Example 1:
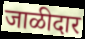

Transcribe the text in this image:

जाळीदार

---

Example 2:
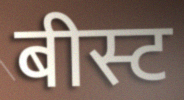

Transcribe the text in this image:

बीस्ट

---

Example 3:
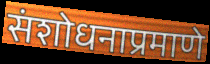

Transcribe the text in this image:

संशोधनाप्रमाणे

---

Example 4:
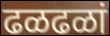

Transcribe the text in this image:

ढळढळां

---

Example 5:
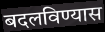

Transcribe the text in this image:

बदलविण्यास